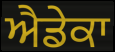
ਐਡੇਕਾ